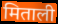
मिताली